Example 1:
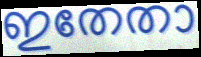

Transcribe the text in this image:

ഇതേതാ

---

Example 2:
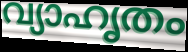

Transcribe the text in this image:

വ്യാഹൃതം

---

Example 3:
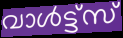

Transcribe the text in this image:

വാൾട്ട്സ്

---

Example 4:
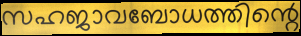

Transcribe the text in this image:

സഹജാവബോധത്തിന്റെ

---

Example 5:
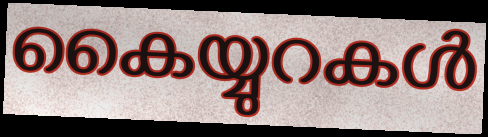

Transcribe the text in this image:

കൈയ്യുറകൾ